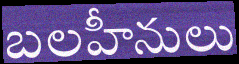
బలహీనులు